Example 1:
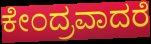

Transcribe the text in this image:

ಕೇಂದ್ರವಾದರೆ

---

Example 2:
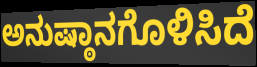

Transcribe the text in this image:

ಅನುಷ್ಠಾನಗೊಳಿಸಿದೆ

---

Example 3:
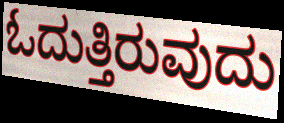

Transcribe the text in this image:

ಓದುತ್ತಿರುವುದು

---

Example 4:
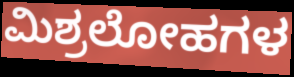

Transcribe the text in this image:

ಮಿಶ್ರಲೋಹಗಳ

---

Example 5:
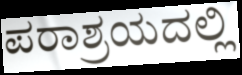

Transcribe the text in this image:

ಪರಾಶ್ರಯದಲ್ಲಿ